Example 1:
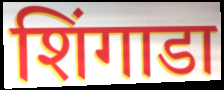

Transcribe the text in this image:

शिंगाडा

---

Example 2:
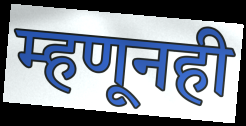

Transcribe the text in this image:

म्‍हणूनही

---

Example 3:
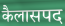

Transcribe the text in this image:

कैलासपद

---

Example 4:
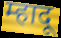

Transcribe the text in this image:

म्हादू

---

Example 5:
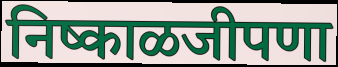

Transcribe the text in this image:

निष्काळजीपणा